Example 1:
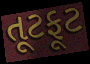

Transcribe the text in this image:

તૂટફૂટ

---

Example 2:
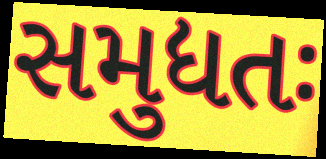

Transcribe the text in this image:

સમુદ્યતઃ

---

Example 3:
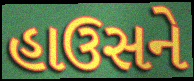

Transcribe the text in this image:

હાઉસને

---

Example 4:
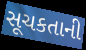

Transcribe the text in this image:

સૂચકતાની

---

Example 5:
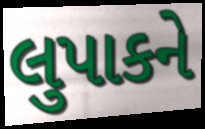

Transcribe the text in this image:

લુપાકને